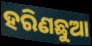
ହରିଣଛୁଆ